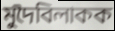
মুদৈবিলাকক